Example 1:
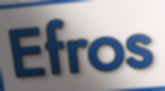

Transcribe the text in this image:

Efros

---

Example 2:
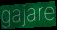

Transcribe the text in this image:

gajare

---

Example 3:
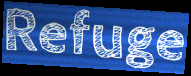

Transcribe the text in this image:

Refuge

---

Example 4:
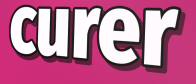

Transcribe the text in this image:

curer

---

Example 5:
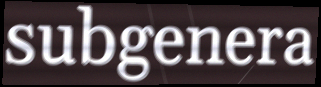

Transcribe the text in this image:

subgenera